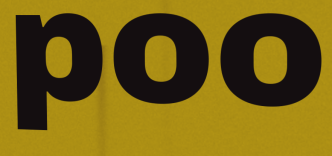
poo